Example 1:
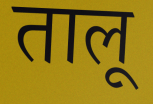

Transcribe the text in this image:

तालू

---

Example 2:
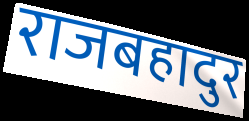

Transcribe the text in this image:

राजबहादुर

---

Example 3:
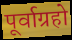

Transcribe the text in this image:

पूर्वाग्रहो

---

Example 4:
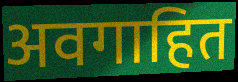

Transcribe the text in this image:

अवगाहित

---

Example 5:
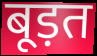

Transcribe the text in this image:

बूड़त